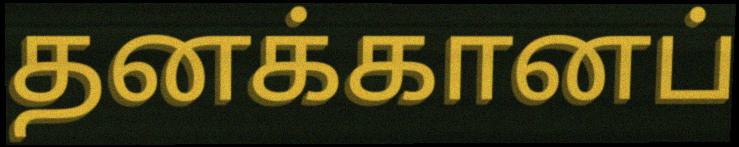
தனக்கானப்